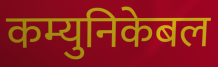
कम्युनिकेबल